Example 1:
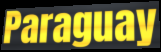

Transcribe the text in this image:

Paraguay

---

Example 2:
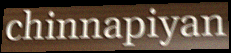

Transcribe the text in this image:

chinnapiyan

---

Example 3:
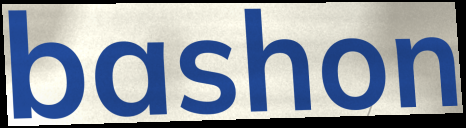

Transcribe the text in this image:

bashon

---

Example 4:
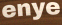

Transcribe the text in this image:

enye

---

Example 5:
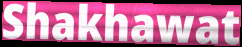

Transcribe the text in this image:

Shakhawat